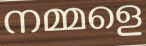
നമ്മളെ